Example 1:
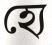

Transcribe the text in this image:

হ্যে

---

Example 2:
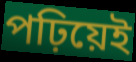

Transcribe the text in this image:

পঢ়িয়েই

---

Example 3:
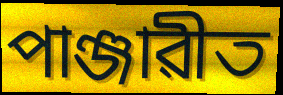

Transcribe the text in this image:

পাঞ্জাৱীত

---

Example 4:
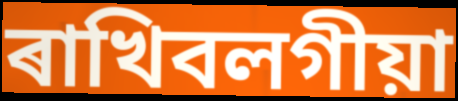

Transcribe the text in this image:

ৰাখিবলগীয়া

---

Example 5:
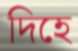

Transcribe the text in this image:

দিহে